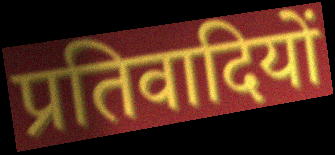
प्रतिवादियों